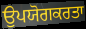
ਉਪਯੋਗਕਰਤਾ